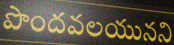
పొందవలయునని